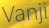
Vanji